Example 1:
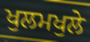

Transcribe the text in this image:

ਖੁਲਮਖੁਲੇ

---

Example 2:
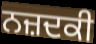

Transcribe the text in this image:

ਨਜ਼ਦਕੀ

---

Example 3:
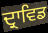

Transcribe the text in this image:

ਦ੍ਰਾਵਿਡ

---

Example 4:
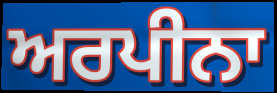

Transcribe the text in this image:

ਅਰਪੀਨਾ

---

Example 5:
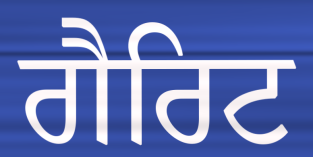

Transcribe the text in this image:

ਗੈਰਿਟ